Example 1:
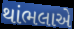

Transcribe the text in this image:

થાંભલાએ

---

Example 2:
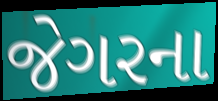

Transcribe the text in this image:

જેગરના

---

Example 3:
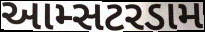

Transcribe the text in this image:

આમ્સટરડામ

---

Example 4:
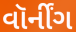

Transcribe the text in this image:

વૉર્નીંગ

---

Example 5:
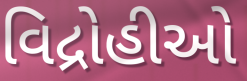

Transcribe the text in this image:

વિદ્રોહીઓ